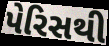
પેરિસથી